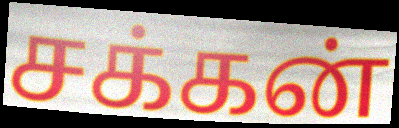
சக்கன்